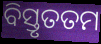
ବିସ୍ତୃତତମ